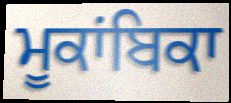
ਮੂਕਾਂਬਿਕਾ